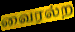
வைரல்ற